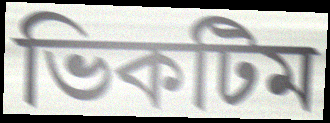
ভিকটিম